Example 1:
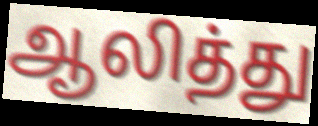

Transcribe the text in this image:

ஆலித்து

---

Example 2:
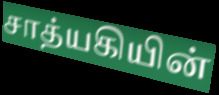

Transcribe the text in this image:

சாத்யகியின்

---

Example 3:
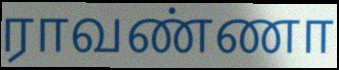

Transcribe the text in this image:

ராவண்ணா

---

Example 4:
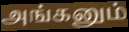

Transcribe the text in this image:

அங்கனும்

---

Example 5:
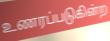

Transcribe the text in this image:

உணரப்படுகின்ற